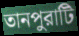
তানপুরাটি